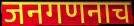
जनगणनाच